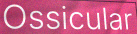
Ossicular